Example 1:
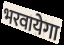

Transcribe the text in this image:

भरवायेगा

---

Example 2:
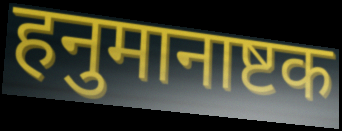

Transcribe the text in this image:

हनुमानाष्टक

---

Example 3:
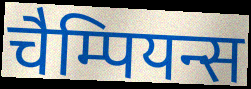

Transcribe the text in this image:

चैम्पियन्स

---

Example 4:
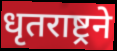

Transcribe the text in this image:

धृतराष्ट्रने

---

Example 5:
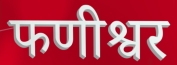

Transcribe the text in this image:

फणीश्वर